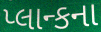
પ્લાન્કના